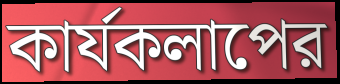
কার্যকলাপের